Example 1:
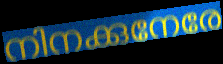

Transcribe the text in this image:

നിനക്കുനേരേ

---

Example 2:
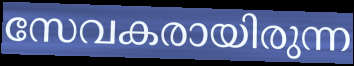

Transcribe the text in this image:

സേവകരായിരുന്ന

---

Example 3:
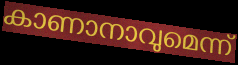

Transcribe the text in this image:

കാണാനാവുമെന്ന്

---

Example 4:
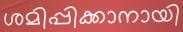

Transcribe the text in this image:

ശമിപ്പിക്കാനായി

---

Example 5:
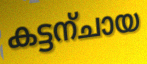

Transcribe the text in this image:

കട്ടന്ചായ